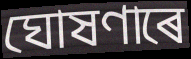
ঘোষণাৰে